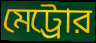
মেট্রোর